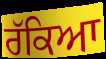
ਰੱਕਿਆ